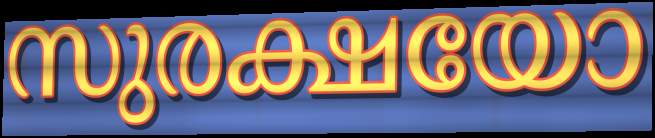
സുരക്ഷയോ